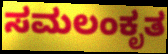
ಸಮಲಂಕೃತ